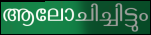
ആലോചിച്ചിട്ടും